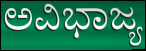
ಅವಿಭಾಜ್ಯ